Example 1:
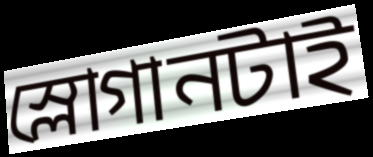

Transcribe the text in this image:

স্লোগানটাই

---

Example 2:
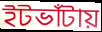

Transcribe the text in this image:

ইটভাঁটায়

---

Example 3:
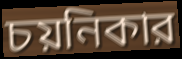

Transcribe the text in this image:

চয়নিকার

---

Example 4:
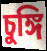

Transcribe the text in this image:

চুঙ্গি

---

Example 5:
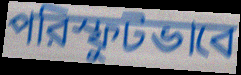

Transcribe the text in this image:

পরিস্ফুটভাবে